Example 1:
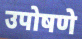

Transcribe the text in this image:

उपोषणे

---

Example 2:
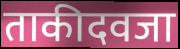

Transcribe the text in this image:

ताकीदवजा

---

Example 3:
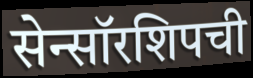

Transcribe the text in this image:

सेन्सॉरशिपची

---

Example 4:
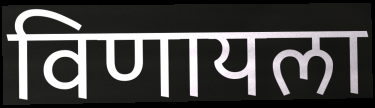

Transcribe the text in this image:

विणायला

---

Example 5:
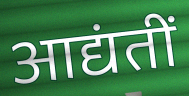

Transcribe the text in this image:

आद्यंतीं